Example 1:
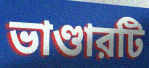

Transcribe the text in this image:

ভাণ্ডারটি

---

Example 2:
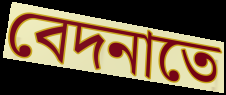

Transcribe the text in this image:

বেদনাতে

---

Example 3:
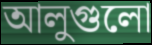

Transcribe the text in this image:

আলুগুলো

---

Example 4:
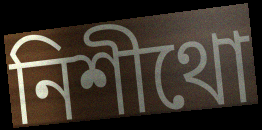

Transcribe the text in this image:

নিশীথো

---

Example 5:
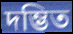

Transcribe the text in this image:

দম্ভিত